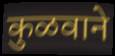
कुळवाने